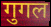
गुगल